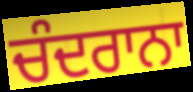
ਚੰਦਰਾਨਾ